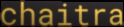
chaitra